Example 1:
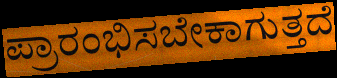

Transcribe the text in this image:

ಪ್ರಾರಂಭಿಸಬೇಕಾಗುತ್ತದೆ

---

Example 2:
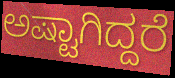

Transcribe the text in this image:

ಅಷ್ಟಾಗಿದ್ದರೆ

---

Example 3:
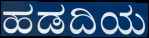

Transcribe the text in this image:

ಹಡದಿಯ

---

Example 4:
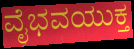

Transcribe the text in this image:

ವೈಭವಯುಕ್ತ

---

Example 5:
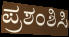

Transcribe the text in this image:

ಪ್ರಶಂಶಿಸಿ